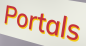
Portals